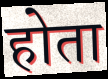
होता